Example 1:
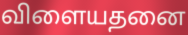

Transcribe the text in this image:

விளையதனை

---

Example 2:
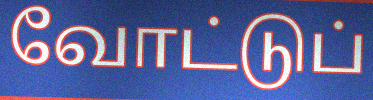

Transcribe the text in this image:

வோட்டுப்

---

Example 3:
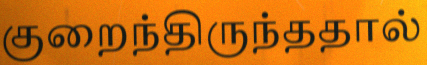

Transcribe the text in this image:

குறைந்திருந்ததால்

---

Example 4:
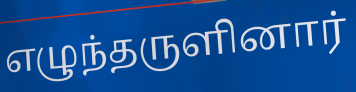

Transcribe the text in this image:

எழுந்தருளினார்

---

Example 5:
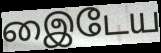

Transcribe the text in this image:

இைடேய